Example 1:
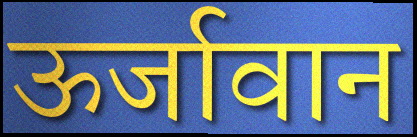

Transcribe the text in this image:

ऊर्जावान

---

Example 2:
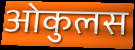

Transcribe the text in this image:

ओकुलस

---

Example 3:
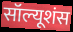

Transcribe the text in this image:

सॉल्यूशंस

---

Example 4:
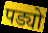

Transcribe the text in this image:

पड्यो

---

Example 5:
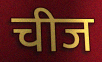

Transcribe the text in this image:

चीज